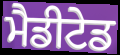
ਮੈਡੀਟੇਡ